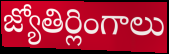
జ్యోతిర్లింగాలు